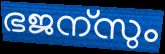
ഭജന്സും